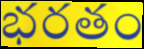
భరతం